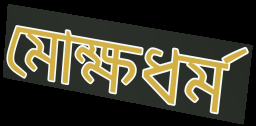
মোক্ষধর্ম